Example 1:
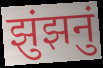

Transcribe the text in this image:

झुंझनुं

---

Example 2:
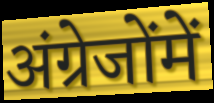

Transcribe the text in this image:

अंग्रेजोंमें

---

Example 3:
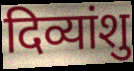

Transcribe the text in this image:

दिव्यांशु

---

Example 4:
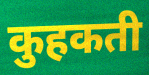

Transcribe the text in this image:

कुहकती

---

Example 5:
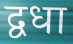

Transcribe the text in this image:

द्वधा